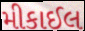
મીકાઈલ